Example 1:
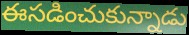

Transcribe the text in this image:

ఈసడించుకున్నాడు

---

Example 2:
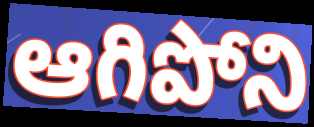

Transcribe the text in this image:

ఆగిపోని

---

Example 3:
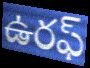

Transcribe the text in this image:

ఉరఫ్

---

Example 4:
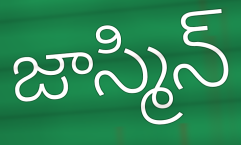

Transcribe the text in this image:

జాస్మిన్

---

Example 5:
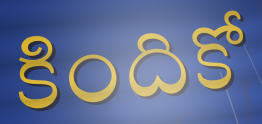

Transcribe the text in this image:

కిందికో